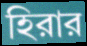
হিরার